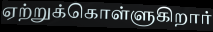
ஏற்றுக்கொள்ளுகிறார்